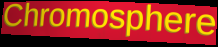
Chromosphere